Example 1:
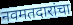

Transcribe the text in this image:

नवमतदारांचा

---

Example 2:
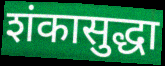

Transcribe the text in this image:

शंकासुद्धा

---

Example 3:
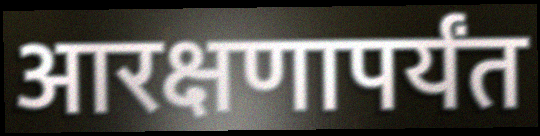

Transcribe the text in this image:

आरक्षणापर्यंत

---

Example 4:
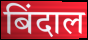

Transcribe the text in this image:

बिंदाल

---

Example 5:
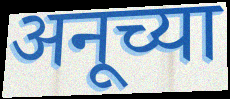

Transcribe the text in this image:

अनूच्या